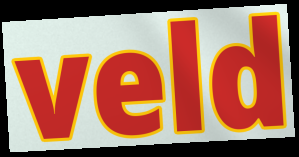
veld